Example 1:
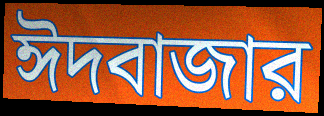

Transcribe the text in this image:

ঈদবাজার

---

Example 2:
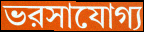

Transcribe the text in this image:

ভরসাযোগ্য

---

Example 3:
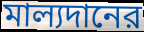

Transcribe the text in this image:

মাল্যদানের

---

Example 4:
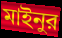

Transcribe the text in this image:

মাইনুর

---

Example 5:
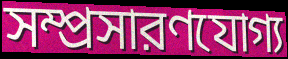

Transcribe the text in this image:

সম্প্রসারণযোগ্য